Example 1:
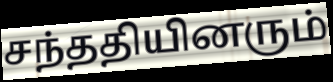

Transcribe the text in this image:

சந்ததியினரும்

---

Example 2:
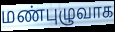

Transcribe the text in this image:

மண்புழுவாக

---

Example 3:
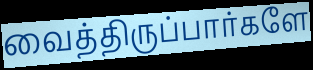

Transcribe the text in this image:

வைத்திருப்பார்களே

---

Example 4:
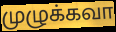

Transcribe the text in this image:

முழுக்கவா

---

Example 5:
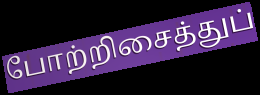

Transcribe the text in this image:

போற்றிசைத்துப்